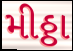
મીઠ્ઠા